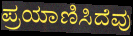
ಪ್ರಯಾಣಿಸಿದೆವು